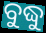
ବୁଦ୍ଧୁ